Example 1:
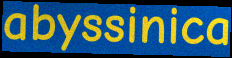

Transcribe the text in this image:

abyssinica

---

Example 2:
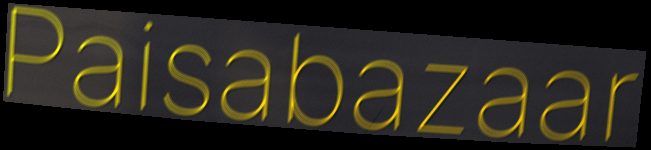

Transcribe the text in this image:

Paisabazaar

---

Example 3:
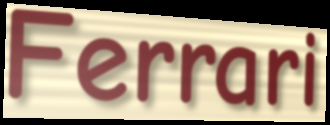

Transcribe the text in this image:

Ferrari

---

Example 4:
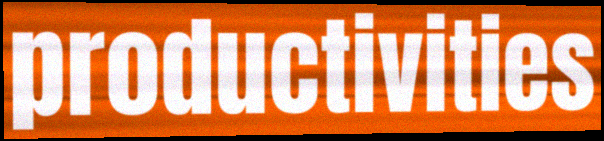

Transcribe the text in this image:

productivities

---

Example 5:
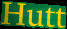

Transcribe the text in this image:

Hutt